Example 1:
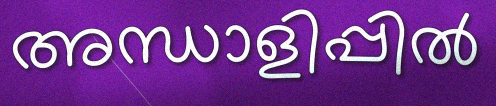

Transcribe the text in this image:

അന്ധാളിപ്പിൽ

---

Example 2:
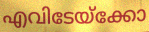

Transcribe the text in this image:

എവിടേയ്ക്കോ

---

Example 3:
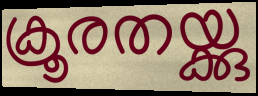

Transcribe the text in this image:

ക്രൂരതയ്ക്കു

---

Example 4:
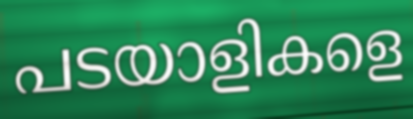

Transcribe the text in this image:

പടയാളികളെ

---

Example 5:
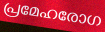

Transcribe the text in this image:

പ്രമേഹരോഗ